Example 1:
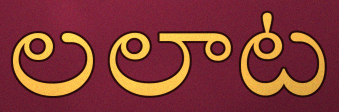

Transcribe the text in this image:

లలాట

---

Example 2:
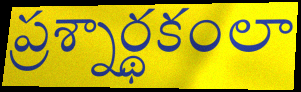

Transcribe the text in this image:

ప్రశ్నార్థకంలా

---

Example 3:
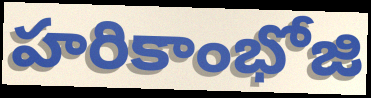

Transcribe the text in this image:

హరికాంభోజి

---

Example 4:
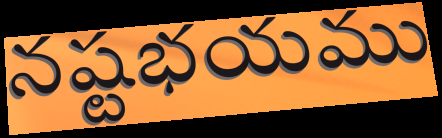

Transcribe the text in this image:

నష్టభయము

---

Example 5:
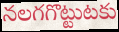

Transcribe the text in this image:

నలగగొట్టుటకు